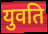
युवति